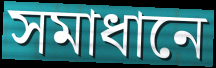
সমাধানে